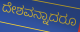
ದೇಶವನ್ನಾದರೂ